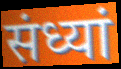
संध्यां